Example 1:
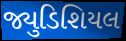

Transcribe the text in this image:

જ્યુડિશિયલ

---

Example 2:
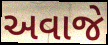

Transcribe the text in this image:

અવાજે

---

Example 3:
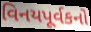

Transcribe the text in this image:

વિનયપૂર્વકનો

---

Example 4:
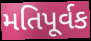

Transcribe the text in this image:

મતિપૂર્વક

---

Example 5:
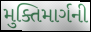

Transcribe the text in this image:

મુક્તિમાર્ગની